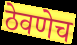
ठेवणेच